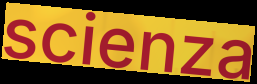
scienza